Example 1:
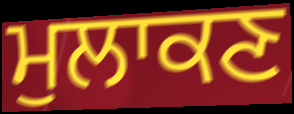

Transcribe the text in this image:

ਮੁਲਾਕਣ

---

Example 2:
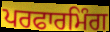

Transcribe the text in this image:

ਪਰਫਾਰਮਿੰਗ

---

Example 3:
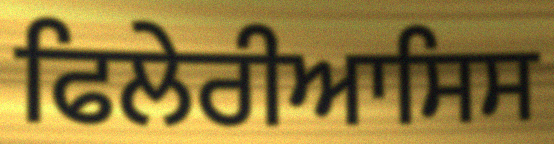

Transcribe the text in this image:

ਫਿਲੇਰੀਆਸਿਸ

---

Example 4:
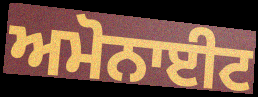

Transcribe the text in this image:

ਅਮੋਨਾਈਟ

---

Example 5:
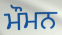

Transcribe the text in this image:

ਮੌਮਨ